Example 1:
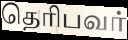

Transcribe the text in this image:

தெரிபவர்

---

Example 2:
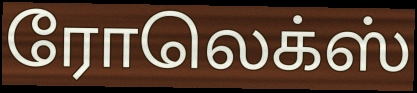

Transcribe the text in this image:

ரோலெக்ஸ்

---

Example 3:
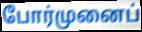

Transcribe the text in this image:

போர்முனைப்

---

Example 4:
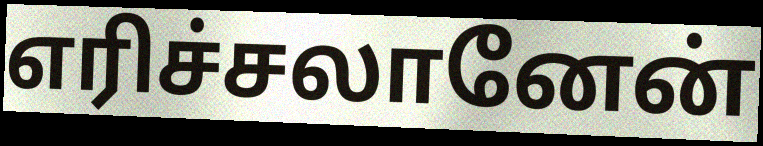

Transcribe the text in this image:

எரிச்சலானேன்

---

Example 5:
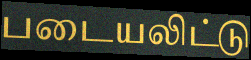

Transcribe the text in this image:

படையலிட்டு